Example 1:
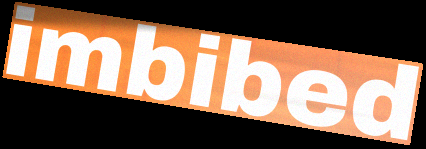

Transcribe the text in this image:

imbibed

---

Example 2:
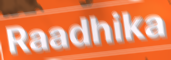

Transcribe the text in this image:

Raadhika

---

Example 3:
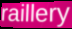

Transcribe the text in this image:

raillery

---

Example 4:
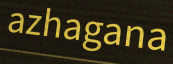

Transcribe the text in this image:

azhagana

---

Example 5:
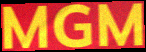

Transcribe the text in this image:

MGM